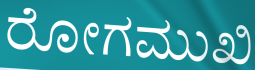
ರೋಗಮುಖಿ